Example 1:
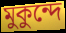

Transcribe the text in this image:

মুকুন্দে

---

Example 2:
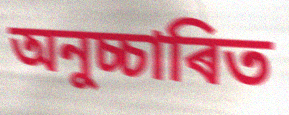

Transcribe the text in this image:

অনুচ্চাৰিত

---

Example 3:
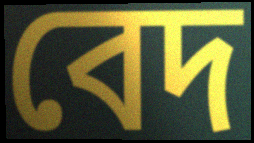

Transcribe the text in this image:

বেদ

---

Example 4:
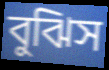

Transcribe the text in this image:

বুঝিস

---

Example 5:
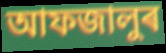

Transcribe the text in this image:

আফজালুৰ